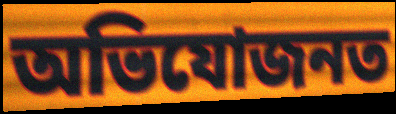
অভিযোজনত